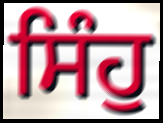
ਸਿੰਹੁ